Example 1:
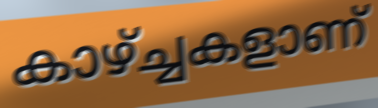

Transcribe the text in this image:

കാഴ്ച്ചകളാണ്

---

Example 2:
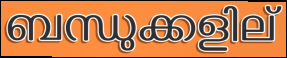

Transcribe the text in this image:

ബന്ധുക്കളില്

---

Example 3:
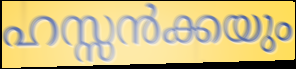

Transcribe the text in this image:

ഹസ്സൻക്കയും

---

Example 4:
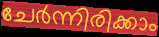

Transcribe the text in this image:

ചേർന്നിരിക്കാം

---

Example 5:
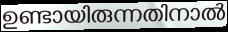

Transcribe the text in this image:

ഉണ്ടായിരുന്നതിനാൽ